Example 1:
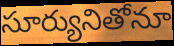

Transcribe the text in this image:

సూర్యునితోనూ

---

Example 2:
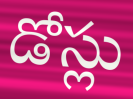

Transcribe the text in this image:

డోస్లు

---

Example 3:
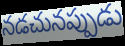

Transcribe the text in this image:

నడచునప్పుడు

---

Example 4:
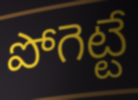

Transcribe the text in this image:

పోగెట్టే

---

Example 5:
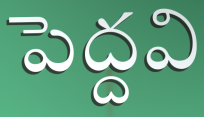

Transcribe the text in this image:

పెద్దవి